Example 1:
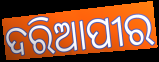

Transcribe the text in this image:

ଦରିଆପୀର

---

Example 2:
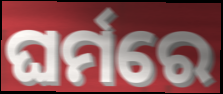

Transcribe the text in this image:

ଘର୍ମରେ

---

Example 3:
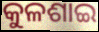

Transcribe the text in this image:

କୁଳଶାଇ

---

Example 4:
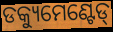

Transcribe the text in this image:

ଡକ୍ୟୁମେଣ୍ଟେଡ୍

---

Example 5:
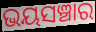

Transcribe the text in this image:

ଭୟସଞ୍ଚାର